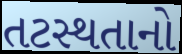
તટસ્થતાનો